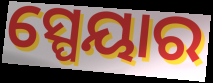
ସ୍ପେୟାର